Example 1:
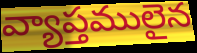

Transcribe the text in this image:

వ్యాప్తములైన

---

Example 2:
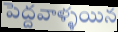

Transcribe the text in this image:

పెద్దవాళ్ళయిన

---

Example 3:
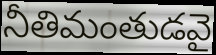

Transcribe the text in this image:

నీతిమంతుడవై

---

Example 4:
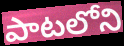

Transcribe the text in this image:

పాటలోని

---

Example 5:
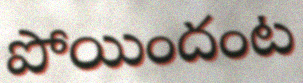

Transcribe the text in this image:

పోయిందంట